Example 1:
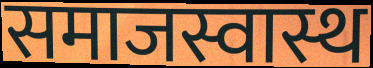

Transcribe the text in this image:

समाजस्वास्थ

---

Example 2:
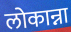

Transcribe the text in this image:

लोकान्ना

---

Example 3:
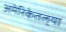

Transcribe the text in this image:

अमेरिकेतल्या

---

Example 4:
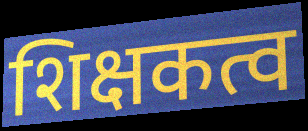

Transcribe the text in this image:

शिक्षकत्व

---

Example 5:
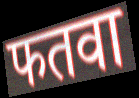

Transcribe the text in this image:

फतवा